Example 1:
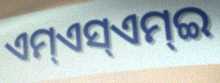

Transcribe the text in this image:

ଏମ୍ଏସ୍ଏମ୍ଇ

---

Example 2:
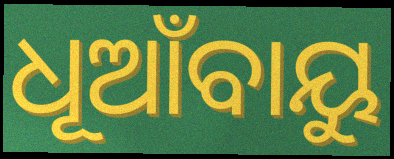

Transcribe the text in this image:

ଧୂଆଁବାୟୁ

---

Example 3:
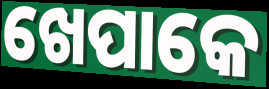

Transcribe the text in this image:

ଖେପାକେ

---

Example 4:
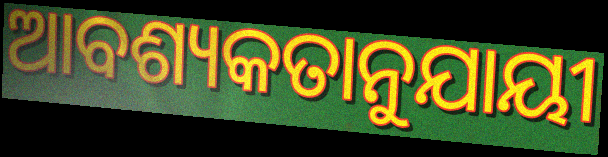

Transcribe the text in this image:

ଆବଶ୍ୟକତାନୁଯାୟୀ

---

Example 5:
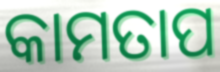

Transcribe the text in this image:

କାମତାପ